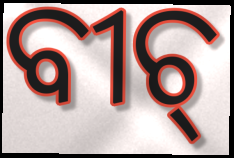
ବୀଚ୍